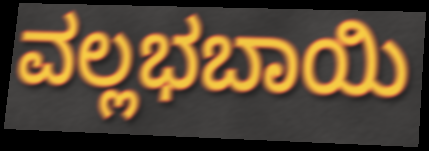
ವಲ್ಲಭಬಾಯಿ